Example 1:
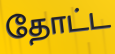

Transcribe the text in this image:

தோட்ட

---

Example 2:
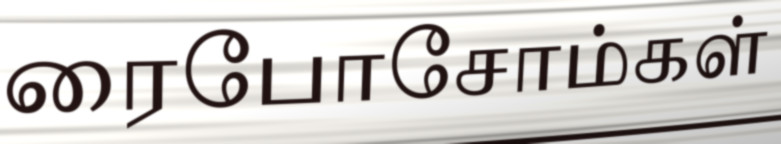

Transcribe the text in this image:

ரைபோசோம்கள்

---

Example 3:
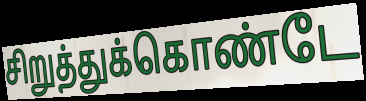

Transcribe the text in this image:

சிறுத்துக்கொண்டே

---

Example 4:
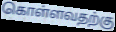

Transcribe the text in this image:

கொள்ளவதற்கு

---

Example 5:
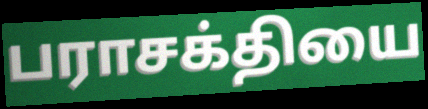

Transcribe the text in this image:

பராசக்தியை